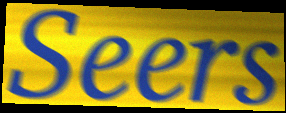
Seers